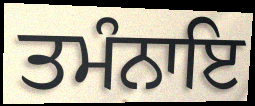
ਤਮੰਨਾਇ